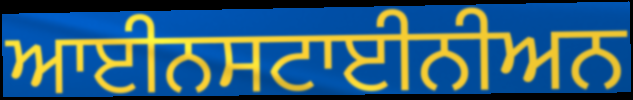
ਆਈਨਸਟਾਈਨੀਅਨ